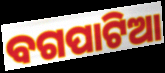
ବଗପାଟିଆ